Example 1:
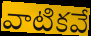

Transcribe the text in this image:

వాటికవే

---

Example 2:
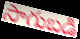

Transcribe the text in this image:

సాగుబడి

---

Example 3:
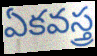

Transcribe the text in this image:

ఏకవస్త్ర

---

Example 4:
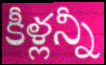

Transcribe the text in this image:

కీళ్లన్నీ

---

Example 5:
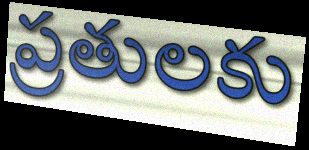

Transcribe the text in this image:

ప్రతులకు